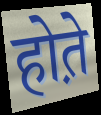
होत़े